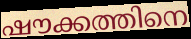
ഷൗക്കത്തിനെ